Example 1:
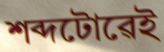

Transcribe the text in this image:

শব্দটোৱেই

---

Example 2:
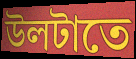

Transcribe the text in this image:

উলটাতে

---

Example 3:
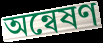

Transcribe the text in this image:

অন্বেষণ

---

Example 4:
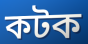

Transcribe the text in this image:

কটক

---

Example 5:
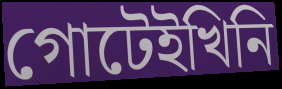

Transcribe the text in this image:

গোটেইখিনি